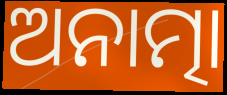
ଅନାତ୍ମା